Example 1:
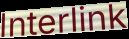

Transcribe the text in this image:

Interlink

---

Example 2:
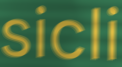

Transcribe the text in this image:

sicli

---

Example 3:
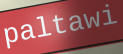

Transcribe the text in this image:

paltawi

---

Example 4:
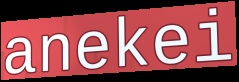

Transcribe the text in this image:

anekei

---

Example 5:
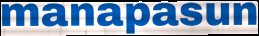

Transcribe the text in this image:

manapasun